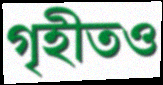
গৃহীতও